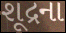
શૂદ્રના